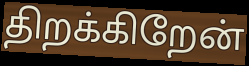
திறக்கிறேன்